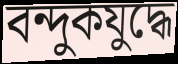
বন্দুকযুদ্ধে